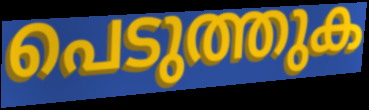
പെടുത്തുക